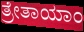
ತ್ರೇತಾಯಾಂ